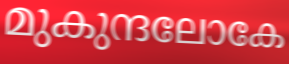
മുകുന്ദലോകേ